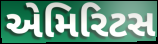
એમિરિટસ